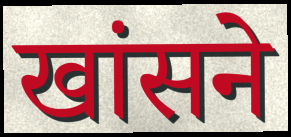
खांसने